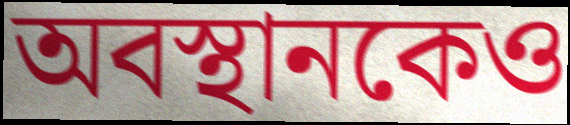
অবস্থানকেও